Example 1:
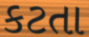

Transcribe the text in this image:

કટતા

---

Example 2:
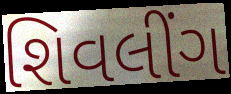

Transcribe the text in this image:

શિવલીંગ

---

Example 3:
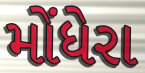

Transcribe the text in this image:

મોંધેરા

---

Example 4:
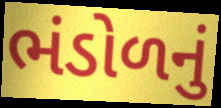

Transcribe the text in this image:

ભંડોળનું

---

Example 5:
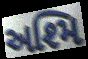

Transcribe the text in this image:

અશ્મિ